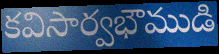
కవిసార్వభౌముడి